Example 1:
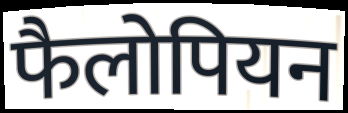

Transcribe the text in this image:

फैलोपियन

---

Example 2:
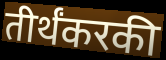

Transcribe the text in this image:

तीर्थंकरकी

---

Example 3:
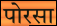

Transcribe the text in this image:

पोरसा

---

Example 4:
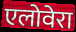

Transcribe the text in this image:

एलोवेरा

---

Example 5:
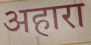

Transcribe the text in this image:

अहारा